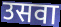
उसवा